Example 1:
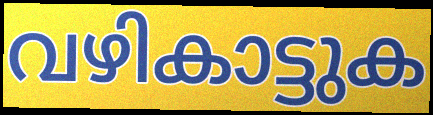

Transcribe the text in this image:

വഴികാട്ടുക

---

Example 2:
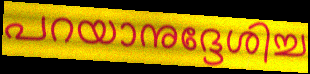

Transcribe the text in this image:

പറയാനുദ്ദേശിച്ച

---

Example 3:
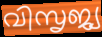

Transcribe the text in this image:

വിസൃജ്യ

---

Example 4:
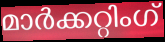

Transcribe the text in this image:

മാർക്കറ്റിംഗ്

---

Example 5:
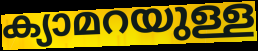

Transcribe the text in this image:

ക്യാമറയുള്ള